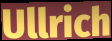
Ullrich